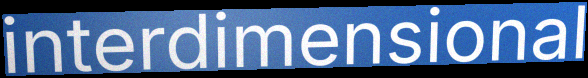
interdimensional